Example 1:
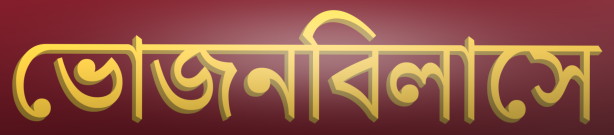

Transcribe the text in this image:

ভোজনবিলাসে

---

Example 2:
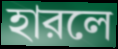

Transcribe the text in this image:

হারলে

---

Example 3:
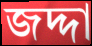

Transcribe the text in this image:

জদ্দা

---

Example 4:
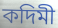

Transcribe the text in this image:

কদিমী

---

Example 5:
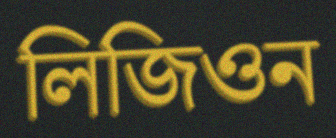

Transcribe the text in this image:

লিজিওন